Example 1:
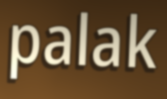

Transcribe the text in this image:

palak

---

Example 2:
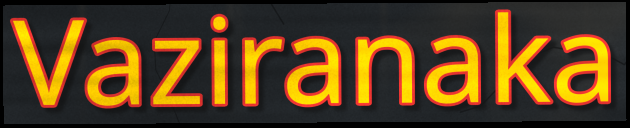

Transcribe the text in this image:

Vaziranaka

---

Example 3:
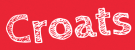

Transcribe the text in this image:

Croats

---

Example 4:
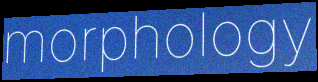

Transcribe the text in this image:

morphology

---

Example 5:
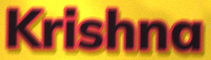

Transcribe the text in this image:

Krishna